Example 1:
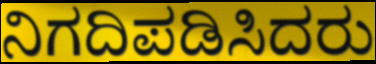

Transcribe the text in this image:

ನಿಗದಿಪಡಿಸಿದರು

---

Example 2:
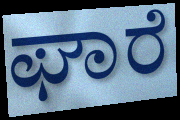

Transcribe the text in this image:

ಘಾರೆ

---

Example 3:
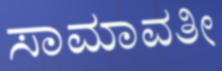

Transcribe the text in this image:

ಸಾಮಾವತೀ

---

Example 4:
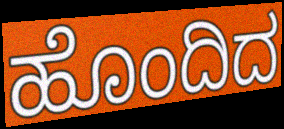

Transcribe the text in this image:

ಹೊಂದಿದ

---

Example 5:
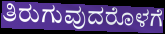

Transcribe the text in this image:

ತಿರುಗುವುದರೊಳಗೆ